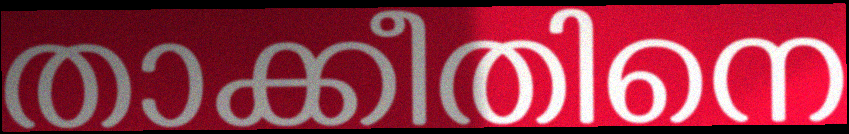
താക്കീതിനെ